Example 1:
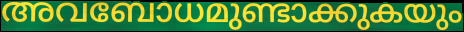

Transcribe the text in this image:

അവബോധമുണ്ടാക്കുകയും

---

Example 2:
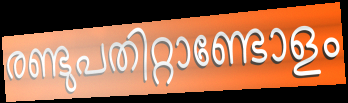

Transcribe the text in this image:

രണ്ടുപതിറ്റാണ്ടോളം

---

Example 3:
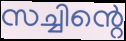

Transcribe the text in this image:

സച്ചിന്റെ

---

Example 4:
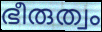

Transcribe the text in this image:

ഭീരുത്വം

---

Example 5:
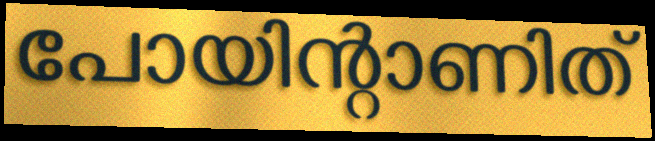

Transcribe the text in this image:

പോയിന്റാണിത്